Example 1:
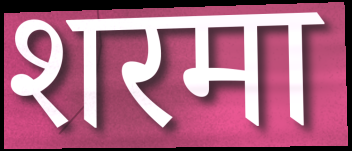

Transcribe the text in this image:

शरमा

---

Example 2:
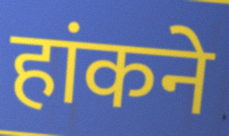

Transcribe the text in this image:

हांकने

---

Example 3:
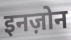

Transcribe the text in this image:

इनज़ोन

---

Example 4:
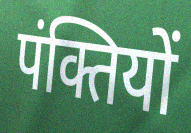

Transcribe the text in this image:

पंक्तियों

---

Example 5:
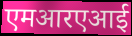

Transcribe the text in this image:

एमआरएआई